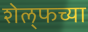
शेल्फच्या